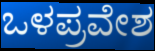
ಒಳಪ್ರವೇಶ